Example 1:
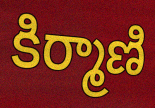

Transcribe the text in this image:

కిర్మాణి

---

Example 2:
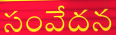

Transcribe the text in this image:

సంవేదన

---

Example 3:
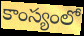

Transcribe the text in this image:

కాంస్యంలో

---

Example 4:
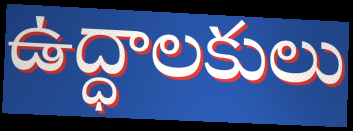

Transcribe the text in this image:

ఉద్ధాలకులు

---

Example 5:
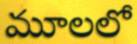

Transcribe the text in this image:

మూలలో